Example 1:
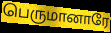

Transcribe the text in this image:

பெருமானாரே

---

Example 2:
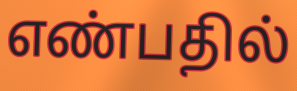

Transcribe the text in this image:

எண்பதில்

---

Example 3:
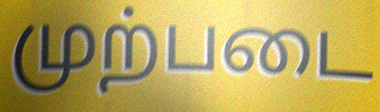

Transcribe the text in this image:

முற்படை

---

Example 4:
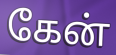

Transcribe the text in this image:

கேன்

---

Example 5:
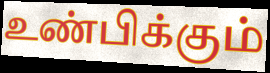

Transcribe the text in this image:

உண்பிக்கும்